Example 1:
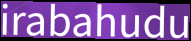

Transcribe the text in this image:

irabahudu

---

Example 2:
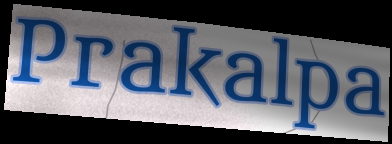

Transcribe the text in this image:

Prakalpa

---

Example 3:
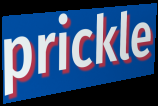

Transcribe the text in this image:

prickle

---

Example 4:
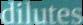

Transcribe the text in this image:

dilutes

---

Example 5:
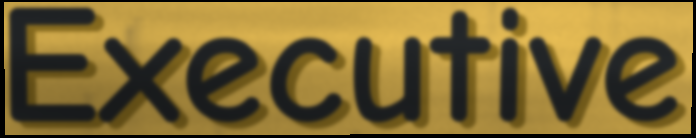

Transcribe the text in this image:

Executive